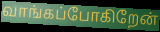
வாங்கப்போகிறேன்